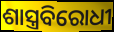
ଶାସ୍ତ୍ରବିରୋଧୀ